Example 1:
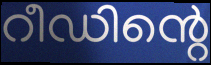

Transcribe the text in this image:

റീഡിന്റെ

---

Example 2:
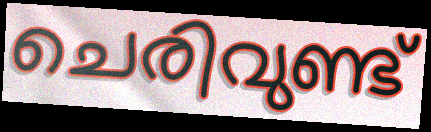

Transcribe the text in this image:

ചെരിവുണ്ട്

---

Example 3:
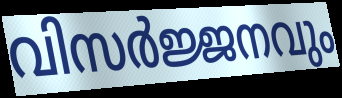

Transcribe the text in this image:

വിസർജ്ജനവും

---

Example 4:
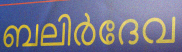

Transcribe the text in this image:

ബലിർദേവ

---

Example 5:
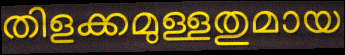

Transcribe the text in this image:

തിളക്കമുള്ളതുമായ